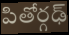
పితోర్గఢ్